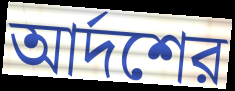
আর্দশের